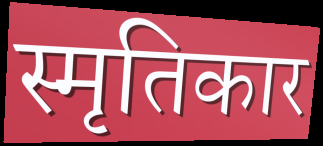
स्मृतिकार